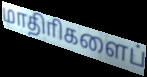
மாதிரிகளைப்